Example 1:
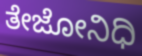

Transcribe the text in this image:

ತೇಜೋನಿಧಿ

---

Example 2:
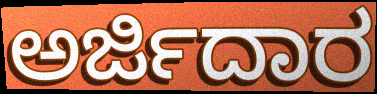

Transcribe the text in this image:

ಅರ್ಜಿದಾರ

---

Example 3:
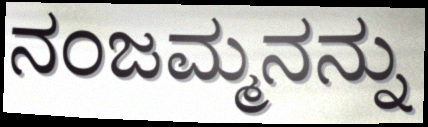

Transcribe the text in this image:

ನಂಜಮ್ಮನನ್ನು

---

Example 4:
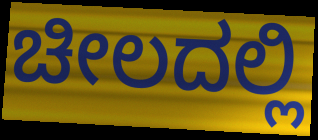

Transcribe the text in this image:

ಚೀಲದಲ್ಲಿ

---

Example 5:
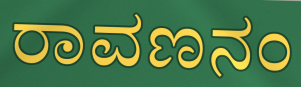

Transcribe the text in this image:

ರಾವಣನಂ